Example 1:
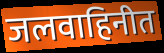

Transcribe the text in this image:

जलवाहिनीत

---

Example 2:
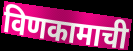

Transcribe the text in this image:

विणकामाची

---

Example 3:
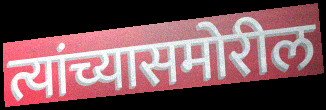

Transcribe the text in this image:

त्यांच्यासमोरील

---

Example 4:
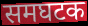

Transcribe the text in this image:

समघटक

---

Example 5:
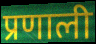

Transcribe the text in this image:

प्रणाली